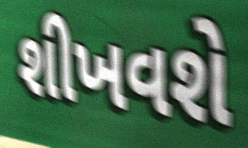
શીખવશે